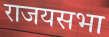
राजयसभा